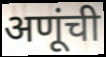
अणूंची